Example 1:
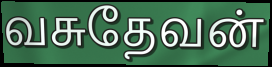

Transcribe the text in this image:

வசுதேவன்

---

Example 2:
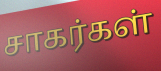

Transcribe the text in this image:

சாகர்கள்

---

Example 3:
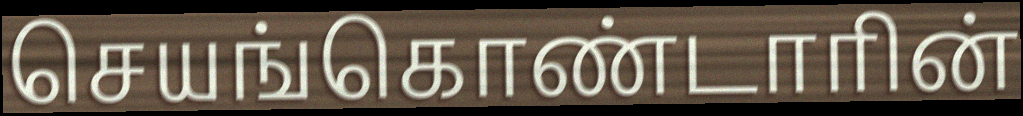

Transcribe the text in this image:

செயங்கொண்டாரின்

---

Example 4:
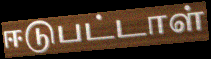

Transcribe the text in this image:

ஈடுபட்டாள்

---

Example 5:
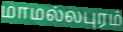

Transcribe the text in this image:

மாமல்லபுரம்